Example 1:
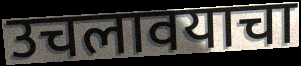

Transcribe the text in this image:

उचलावयाचा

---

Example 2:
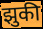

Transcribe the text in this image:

झुकी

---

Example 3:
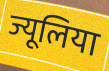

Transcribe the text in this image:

ज्यूलिया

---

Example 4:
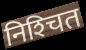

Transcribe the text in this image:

निश्‍चित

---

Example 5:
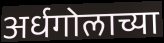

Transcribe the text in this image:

अर्धगोलाच्या